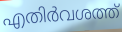
എതിർവശത്ത്